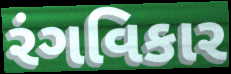
રંગવિકાર